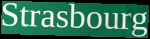
Strasbourg